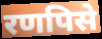
रणपिसे